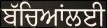
ਬੱਚਿਆਂਲਈ